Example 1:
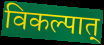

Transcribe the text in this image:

विकल्पात्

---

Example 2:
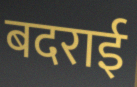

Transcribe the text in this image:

बदराई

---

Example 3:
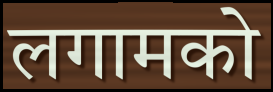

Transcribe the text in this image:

लगामको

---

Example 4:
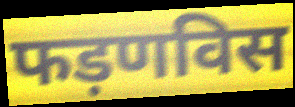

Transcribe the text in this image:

फड़णविस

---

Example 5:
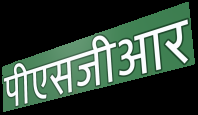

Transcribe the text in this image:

पीएसजीआर